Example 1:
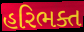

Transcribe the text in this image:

હરિભક્ત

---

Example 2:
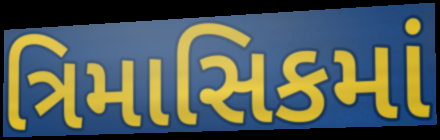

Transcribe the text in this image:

ત્રિમાસિકમાં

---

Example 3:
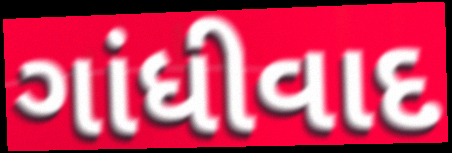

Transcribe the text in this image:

ગાંધીવાદ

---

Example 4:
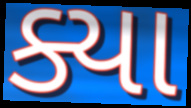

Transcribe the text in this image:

ક્યા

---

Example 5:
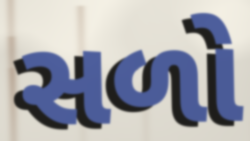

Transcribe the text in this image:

સળો